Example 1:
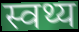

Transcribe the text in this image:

स्वथ्य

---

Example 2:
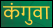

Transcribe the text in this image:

कंगुवा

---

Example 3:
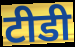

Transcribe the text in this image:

टीडी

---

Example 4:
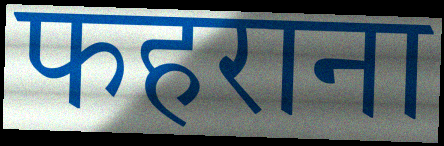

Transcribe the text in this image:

फहराना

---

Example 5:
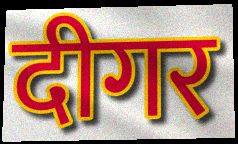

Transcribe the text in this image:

दीगर